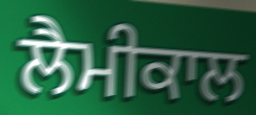
ਲੈਮੀਕਾਲ